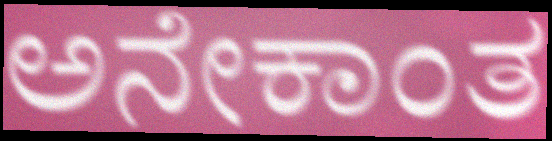
ಅನೇಕಾಂತ